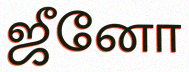
ஜீனோ